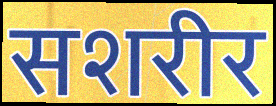
सशरीर